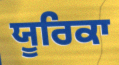
ਯੂਰਿਕਾ